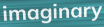
imaginary